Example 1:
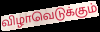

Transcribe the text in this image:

விழாவெடுக்கும்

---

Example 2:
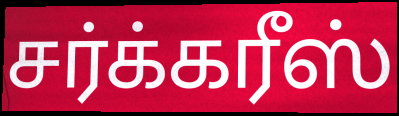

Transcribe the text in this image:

சர்க்கரீஸ்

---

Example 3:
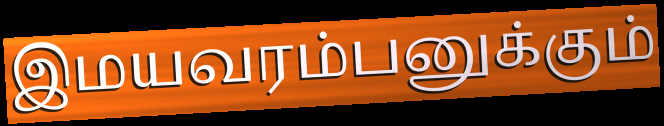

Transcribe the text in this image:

இமயவரம்பனுக்கும்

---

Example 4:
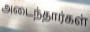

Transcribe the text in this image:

அடைந்தார்கள்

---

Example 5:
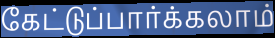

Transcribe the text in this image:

கேட்டுப்பார்க்கலாம்